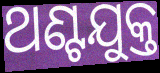
ଥଣ୍ଟଯୁକ୍ତ